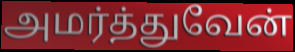
அமர்த்துவேன்